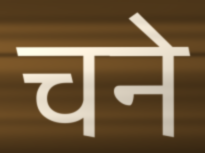
चने